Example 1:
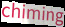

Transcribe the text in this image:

chiming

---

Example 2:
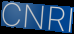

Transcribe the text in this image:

CNRI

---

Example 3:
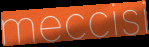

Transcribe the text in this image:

meccisi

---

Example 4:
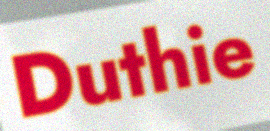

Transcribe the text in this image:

Duthie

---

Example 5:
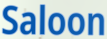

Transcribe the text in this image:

Saloon